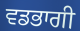
ਵਡਭਾਗੀ